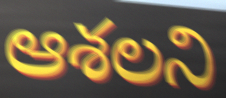
ఆశలని